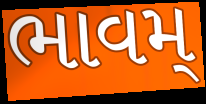
ભાવમ્